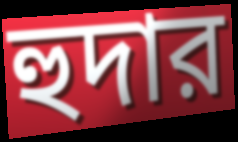
হুদার